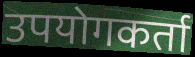
उपयोगकर्ता